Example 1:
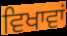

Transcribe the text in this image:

ਵਿਖਾਵਾਂ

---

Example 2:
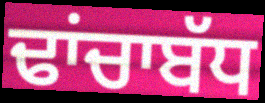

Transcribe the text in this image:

ਢਾਂਚਾਬੱਧ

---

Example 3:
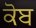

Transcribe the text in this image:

ਕੋਬ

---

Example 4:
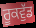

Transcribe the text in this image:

ਰੂਕਵੁੱਡ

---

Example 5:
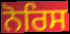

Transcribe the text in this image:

ਨੋਰਿਸ